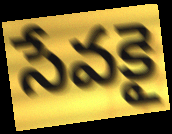
సేవకై